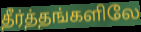
தீர்த்தங்களிலே